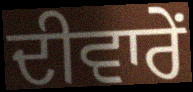
ਦੀਵਾਰੇਂ